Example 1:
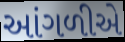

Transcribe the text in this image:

આંગળીએ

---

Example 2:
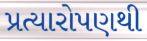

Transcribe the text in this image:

પ્રત્યારોપણથી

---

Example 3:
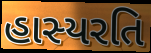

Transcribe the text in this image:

હાસ્યરતિ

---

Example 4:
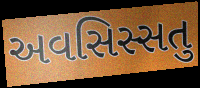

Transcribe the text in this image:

અવસિસ્સતુ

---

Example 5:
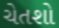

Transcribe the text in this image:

ચેતશો